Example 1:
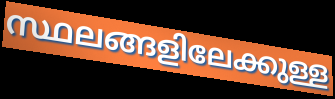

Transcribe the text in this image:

സ്ഥലങ്ങളിലേക്കുള്ള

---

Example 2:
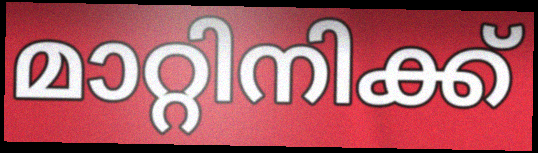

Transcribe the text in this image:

മാറ്റിനിക്ക്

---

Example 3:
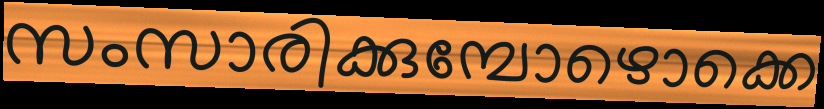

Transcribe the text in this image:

സംസാരിക്കുമ്പോഴൊക്കെ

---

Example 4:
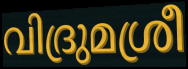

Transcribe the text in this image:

വിദ്രുമശ്രീ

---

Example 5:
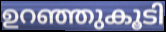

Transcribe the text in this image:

ഉറഞ്ഞുകൂടി